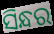
ସିନ୍ଧର